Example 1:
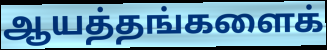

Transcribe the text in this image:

ஆயத்தங்களைக்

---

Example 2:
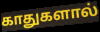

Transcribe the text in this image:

காதுகளால்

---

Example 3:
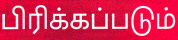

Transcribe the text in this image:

பிரிக்கப்படும்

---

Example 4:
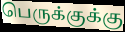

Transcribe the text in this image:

பெருக்குக்கு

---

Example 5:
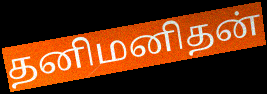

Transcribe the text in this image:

தனிமனிதன்